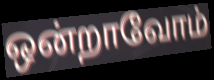
ஒன்றாவோம்